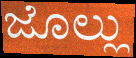
ಜೊಲ್ಲು